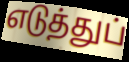
எடுத்துப்